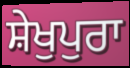
ਸ਼ੇਖੁਪੁਰਾ